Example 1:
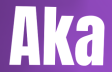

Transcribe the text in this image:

Aka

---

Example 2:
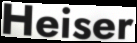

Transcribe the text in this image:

Heiser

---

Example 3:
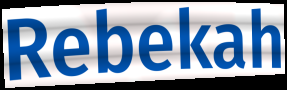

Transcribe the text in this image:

Rebekah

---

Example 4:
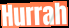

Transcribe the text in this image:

Hurrah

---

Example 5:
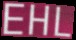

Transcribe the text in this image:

EHL